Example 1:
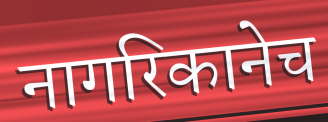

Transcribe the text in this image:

नागरिकानेच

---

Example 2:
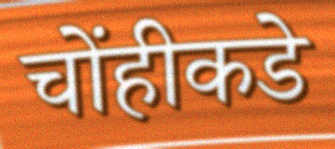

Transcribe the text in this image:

चोंहीकडे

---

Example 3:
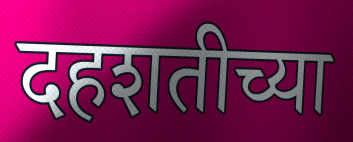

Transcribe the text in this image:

दहशतीच्या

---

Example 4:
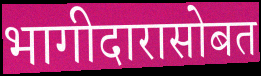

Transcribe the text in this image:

भागीदारासोबत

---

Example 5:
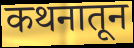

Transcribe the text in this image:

कथनातून